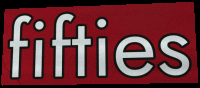
fifties